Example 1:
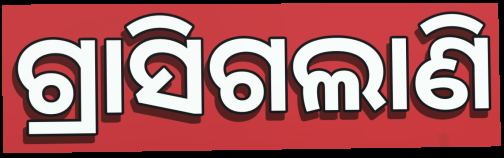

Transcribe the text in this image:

ଗ୍ରାସିଗଲାଣି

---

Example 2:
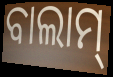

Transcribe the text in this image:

ବାଲାମ୍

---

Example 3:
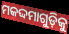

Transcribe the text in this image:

ମକଦ୍ଦମାଗୁଡ଼ିକୁ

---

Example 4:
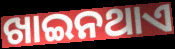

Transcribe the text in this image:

ଖାଇନଥାଏ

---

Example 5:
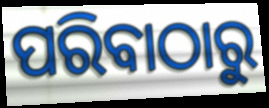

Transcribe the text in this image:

ପରିବାଠାରୁ